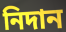
নিদান